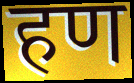
हण